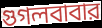
গুগলবাবার